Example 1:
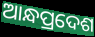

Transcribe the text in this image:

ଆନ୍ଧପ୍ରଦେଶ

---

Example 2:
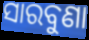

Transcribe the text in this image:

ସାରବୁଣା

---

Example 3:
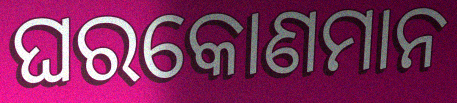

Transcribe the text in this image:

ଘରକୋଣମାନ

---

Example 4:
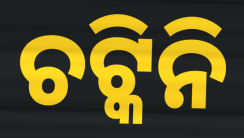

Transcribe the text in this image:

ଚଟ୍କିନି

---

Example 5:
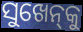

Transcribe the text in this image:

ସୁଖେନ୍‌କୁ